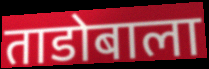
ताडोबाला